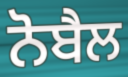
ਨੋਬੈਲ